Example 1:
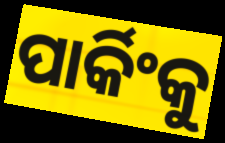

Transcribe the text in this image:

ପାର୍କିଂକୁ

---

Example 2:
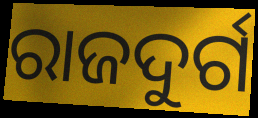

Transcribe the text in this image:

ରାଜଦୁର୍ଗ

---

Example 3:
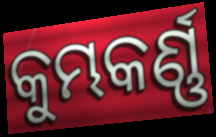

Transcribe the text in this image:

କୁମ୍ଭକର୍ଣ୍ଣ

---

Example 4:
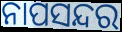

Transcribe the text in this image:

ନାପସନ୍ଦର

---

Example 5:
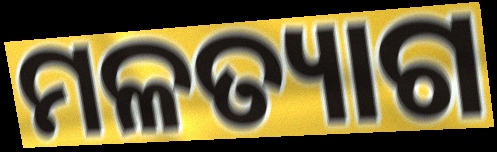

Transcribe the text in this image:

ମଳତ୍ୟାଗ